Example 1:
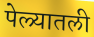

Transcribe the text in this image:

पेल्यातली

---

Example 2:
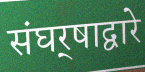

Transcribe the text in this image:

संघर्षाद्वारे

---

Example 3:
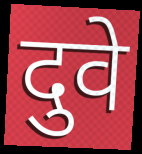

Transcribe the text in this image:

दुवे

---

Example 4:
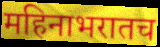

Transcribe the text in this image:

महिनाभरातच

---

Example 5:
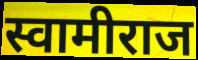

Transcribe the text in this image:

स्वामीराज